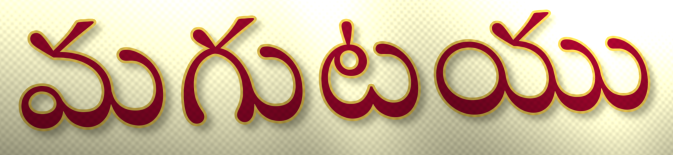
మగుటయు